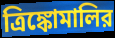
ত্রিঙ্কোমালির